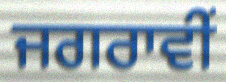
ਜਗਰਾਵੀਂ